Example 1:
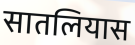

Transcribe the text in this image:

सातलियास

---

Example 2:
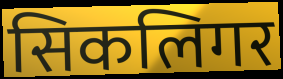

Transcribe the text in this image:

सिकलिगर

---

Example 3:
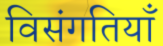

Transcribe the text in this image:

विसंगतियाँ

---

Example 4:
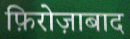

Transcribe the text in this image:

फ़िरोज़ाबाद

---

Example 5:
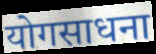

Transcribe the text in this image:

योगसाधना